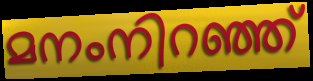
മനംനിറഞ്ഞ്